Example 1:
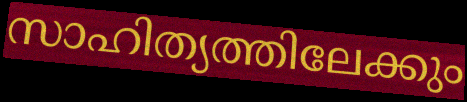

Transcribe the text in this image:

സാഹിത്യത്തിലേക്കും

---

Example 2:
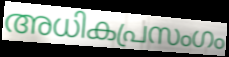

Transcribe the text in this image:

അധികപ്രസംഗം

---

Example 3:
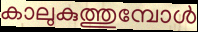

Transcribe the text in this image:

കാലുകുത്തുമ്പോൾ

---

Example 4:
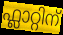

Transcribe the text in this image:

ഫ്ലാറ്റിന്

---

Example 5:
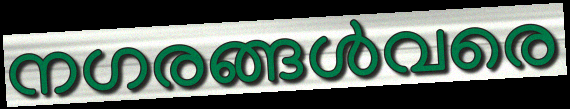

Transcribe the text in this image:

നഗരങ്ങൾവരെ